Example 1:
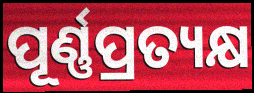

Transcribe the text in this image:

ପୂର୍ଣ୍ଣପ୍ରତ୍ୟକ୍ଷ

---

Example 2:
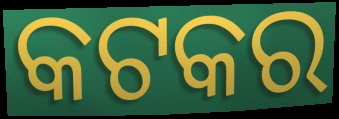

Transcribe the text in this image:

କଟକର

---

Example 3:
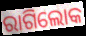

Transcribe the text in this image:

ରାଗିଲୋକ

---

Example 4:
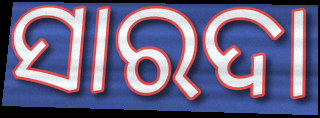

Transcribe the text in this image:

ସାରଦା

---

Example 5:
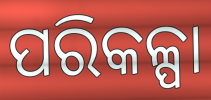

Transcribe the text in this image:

ପରିକଳ୍ପା